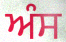
ਅੰਸ